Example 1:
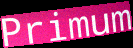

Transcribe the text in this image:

Primum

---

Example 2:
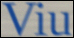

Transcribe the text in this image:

Viu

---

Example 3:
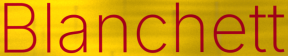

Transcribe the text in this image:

Blanchett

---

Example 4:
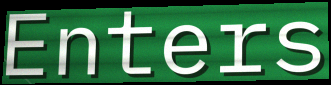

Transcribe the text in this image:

Enters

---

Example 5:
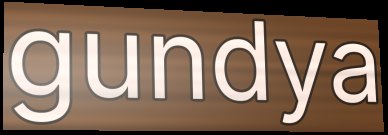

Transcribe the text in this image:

gundya